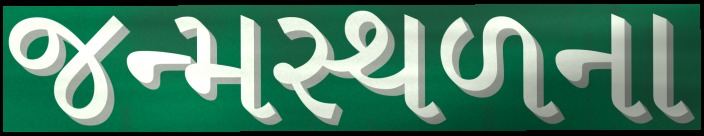
જન્મસ્થળના